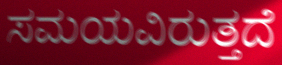
ಸಮಯವಿರುತ್ತದೆ